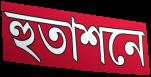
হুতাশনে